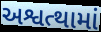
અશ્વત્થામાં